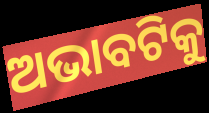
ଅଭାବଟିକୁ